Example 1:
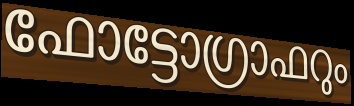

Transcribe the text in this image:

ഫോട്ടോഗ്രാഫറും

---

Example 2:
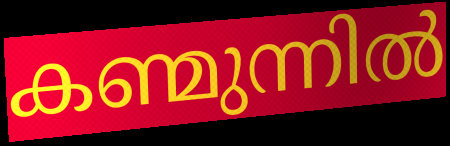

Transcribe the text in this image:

കണ്മുന്നിൽ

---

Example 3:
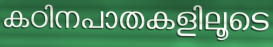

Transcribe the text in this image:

കഠിനപാതകളിലൂടെ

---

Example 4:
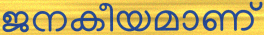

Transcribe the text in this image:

ജനകീയമാണ്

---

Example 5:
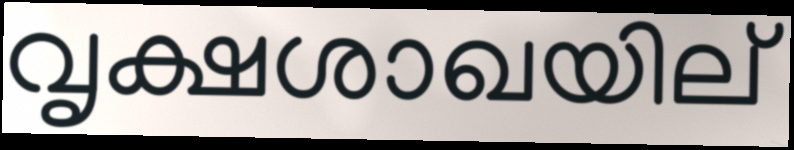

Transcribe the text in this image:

വൃക്ഷശാഖയില്